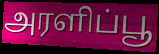
அரளிப்பூ